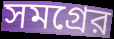
সমগ্রের